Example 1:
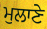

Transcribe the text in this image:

ਮੁਲਾਣੇ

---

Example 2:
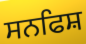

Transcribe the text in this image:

ਸਨਫਿਸ਼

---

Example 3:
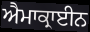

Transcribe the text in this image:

ਐਮਾਕ੍ਰਾਈਨ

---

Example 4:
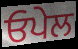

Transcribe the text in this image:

ਓਪੇਲ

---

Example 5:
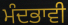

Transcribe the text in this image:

ਮੰਦਭਾਵੀ